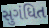
સુગંધિત